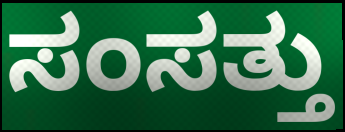
ಸಂಸತ್ತು